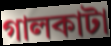
গালকাটা